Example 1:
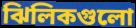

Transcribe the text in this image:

ঝিলিকগুলো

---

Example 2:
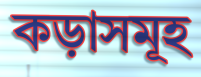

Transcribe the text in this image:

কড়াসমূহ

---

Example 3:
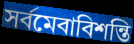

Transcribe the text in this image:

সর্বমেবাবিশন্তি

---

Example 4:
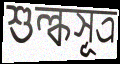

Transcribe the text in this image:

শুল্কসূত্র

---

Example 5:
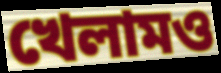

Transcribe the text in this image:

খেলামও